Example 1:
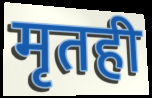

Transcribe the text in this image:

मृतही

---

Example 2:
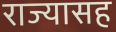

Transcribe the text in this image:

राज्यासह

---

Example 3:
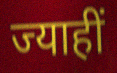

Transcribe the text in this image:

ज्याहीं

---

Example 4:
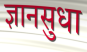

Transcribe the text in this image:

ज्ञानसुधा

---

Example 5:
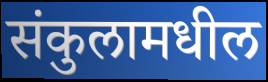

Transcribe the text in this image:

संकुलामधील